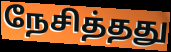
நேசித்தது